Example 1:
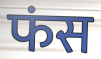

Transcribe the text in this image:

फंस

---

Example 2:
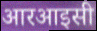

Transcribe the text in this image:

आरआइसी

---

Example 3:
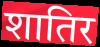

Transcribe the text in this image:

शातिर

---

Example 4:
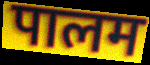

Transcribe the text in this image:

पालम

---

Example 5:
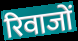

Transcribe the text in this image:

रिवाजों